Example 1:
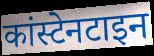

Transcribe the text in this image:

कांस्टेनटाइन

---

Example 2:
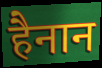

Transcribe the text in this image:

हैनान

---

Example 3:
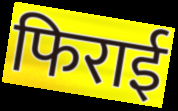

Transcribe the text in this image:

फिराई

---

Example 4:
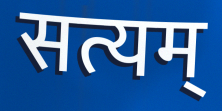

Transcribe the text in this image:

सत्यम्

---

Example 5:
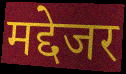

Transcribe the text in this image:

मद्देजर